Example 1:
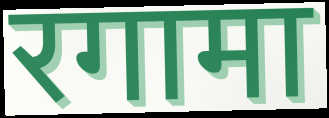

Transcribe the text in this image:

रगामा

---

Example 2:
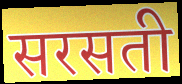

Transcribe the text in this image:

सरसती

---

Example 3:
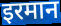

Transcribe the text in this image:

इरमान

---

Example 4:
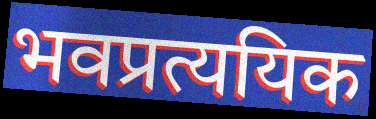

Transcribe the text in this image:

भवप्रत्ययिक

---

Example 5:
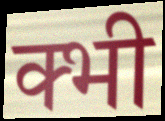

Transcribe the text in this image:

क्भी